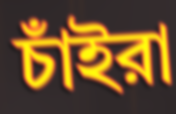
চাঁইরা